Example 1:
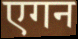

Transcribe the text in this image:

एगन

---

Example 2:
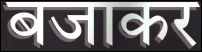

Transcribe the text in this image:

बजाकर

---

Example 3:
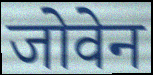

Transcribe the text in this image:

जोवेन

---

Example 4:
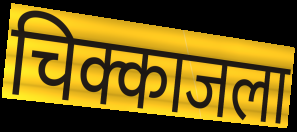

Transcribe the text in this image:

चिक्काजला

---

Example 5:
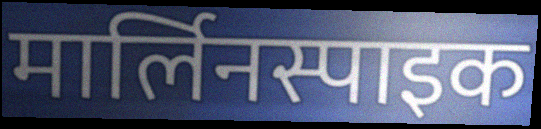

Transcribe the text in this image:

मार्लिनस्पाइक